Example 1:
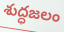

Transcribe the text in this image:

శుద్ధజలం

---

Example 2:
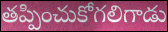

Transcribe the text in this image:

తప్పించుకోగలిగాడు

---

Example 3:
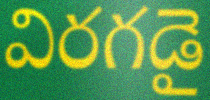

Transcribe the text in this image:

విరగడై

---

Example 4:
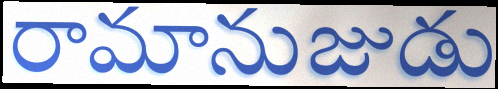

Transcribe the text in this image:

రామానుజుడు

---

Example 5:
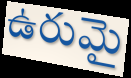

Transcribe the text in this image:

ఉరుమై